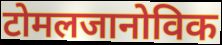
टोमलजानोविक